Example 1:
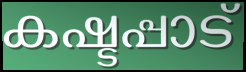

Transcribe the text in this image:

കഷ്ടപ്പാട്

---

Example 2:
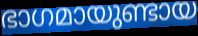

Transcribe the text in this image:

ഭാഗമായുണ്ടായ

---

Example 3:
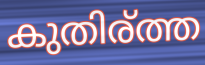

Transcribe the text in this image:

കുതിര്ത്ത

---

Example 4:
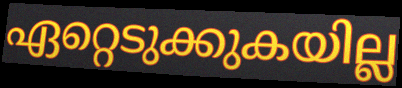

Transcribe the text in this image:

ഏറ്റെടുക്കുകയില്ല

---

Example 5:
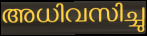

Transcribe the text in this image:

അധിവസിച്ചു